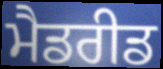
ਮੈਡਰੀਡ